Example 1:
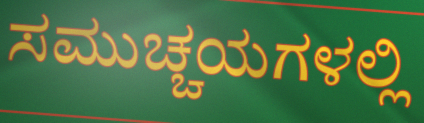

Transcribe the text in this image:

ಸಮುಚ್ಚಯಗಳಲ್ಲಿ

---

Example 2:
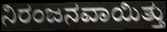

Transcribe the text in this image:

ನಿರಂಜನವಾಯಿತ್ತು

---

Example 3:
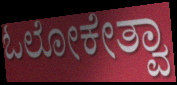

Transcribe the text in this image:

ಓಲೋಕೇತ್ವಾ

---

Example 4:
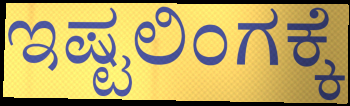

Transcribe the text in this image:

ಇಷ್ಟಲಿಂಗಕ್ಕೆ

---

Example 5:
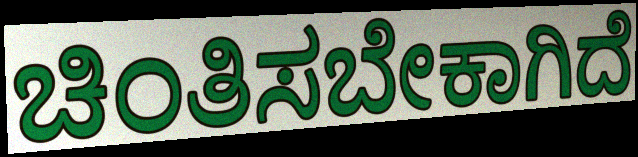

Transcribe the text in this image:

ಚಿಂತಿಸಬೇಕಾಗಿದೆ